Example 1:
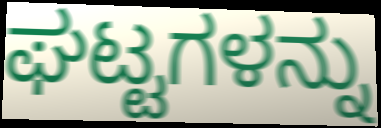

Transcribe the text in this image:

ಘಟ್ಟಗಳನ್ನು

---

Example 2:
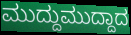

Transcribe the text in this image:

ಮುದ್ದುಮುದ್ದಾದ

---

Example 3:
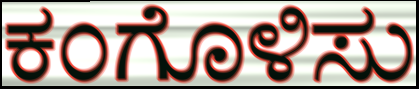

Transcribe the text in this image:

ಕಂಗೊಳಿಸು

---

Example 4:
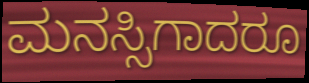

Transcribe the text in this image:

ಮನಸ್ಸಿಗಾದರೂ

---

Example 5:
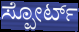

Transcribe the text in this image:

ಸ್ಪೋರ್ಟ್